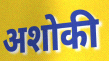
अशोकी